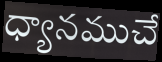
ధ్యానముచే